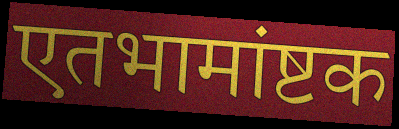
एतभामांष्टक